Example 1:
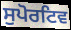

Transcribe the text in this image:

ਸੁਪੋਰਟਿਵ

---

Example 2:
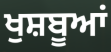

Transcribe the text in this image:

ਖੁਸ਼ਬੂਆਂ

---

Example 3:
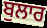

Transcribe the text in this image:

ਬੁਲਾਰ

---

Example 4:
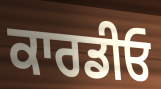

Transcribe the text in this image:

ਕਾਰਡੀਓ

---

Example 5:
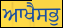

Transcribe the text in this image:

ਆਖੈਸਭੁ